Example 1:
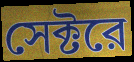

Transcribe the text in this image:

সেক্টরে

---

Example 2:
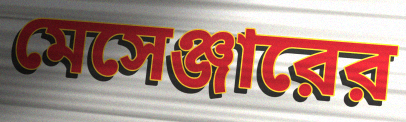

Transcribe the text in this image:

মেসেঞ্জারের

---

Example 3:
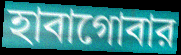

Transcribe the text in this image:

হাবাগোবার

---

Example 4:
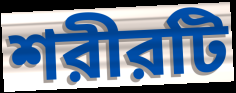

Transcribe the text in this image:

শরীরটি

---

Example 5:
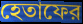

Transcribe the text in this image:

হেতাফের